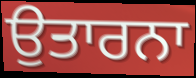
ਉਤਾਰਨਾ